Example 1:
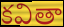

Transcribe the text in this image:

కవితా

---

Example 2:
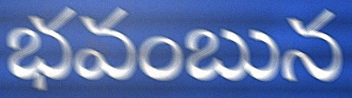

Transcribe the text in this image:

భవంబున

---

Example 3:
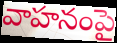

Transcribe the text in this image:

వాహనంపై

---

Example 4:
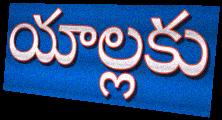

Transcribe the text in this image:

యాల్లకు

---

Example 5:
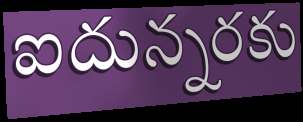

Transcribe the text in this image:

ఐదున్నరకు